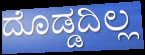
ದೊಡ್ಡದಿಲ್ಲ